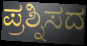
ಪ್ರಶ್ನಿಸದ